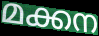
മക്കന